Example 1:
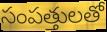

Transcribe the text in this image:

సంపత్తులతో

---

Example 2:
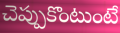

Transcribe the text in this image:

చెప్పుకొంటుంటే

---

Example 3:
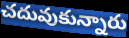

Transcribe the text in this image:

చదువుకున్నారు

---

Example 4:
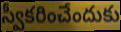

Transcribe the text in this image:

స్వీకరించేందుకు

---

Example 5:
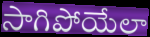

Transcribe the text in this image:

సాగిపోయేలా